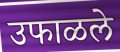
उफाळले